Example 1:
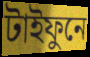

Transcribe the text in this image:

টাইফুনে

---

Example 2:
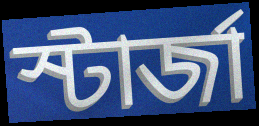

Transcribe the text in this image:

স্টার্জা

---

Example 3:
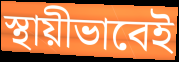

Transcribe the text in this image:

স্থায়ীভাবেই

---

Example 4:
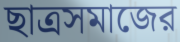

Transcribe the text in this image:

ছাত্রসমাজের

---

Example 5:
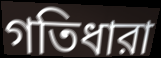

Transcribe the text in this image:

গতিধারা